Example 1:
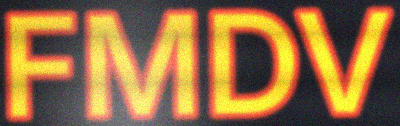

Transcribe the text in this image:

FMDV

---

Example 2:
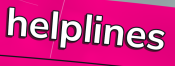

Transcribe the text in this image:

helplines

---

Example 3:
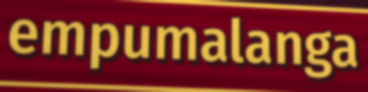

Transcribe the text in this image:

empumalanga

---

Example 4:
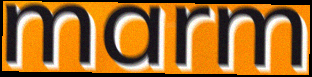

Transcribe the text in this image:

marm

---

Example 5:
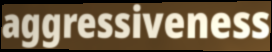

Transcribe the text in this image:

aggressiveness